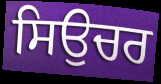
ਸਿਉਚਰ